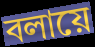
বলায়ে